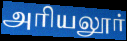
அரியலூர்